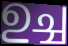
ഉച്ച